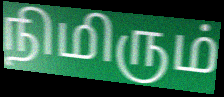
நிமிரும்